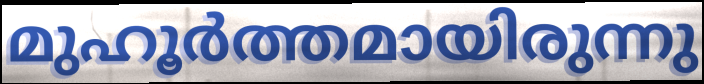
മുഹൂർത്തമായിരുന്നു